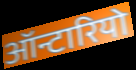
ऑन्टारियो